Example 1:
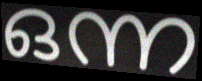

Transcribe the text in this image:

ഒന്ന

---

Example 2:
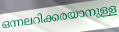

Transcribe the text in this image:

ഒന്നലറിക്കരയാനുള്ള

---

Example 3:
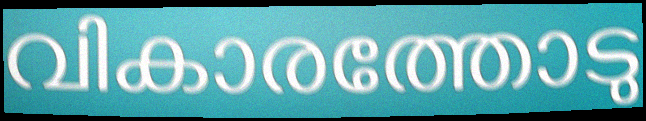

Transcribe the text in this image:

വികാരത്തോടു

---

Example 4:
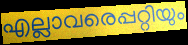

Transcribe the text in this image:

എല്ലാവരെപ്പറ്റിയും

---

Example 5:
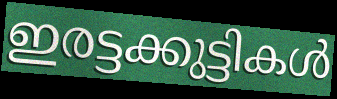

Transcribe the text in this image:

ഇരട്ടക്കുട്ടികൾ